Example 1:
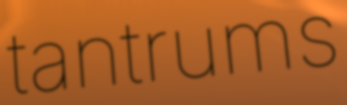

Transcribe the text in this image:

tantrums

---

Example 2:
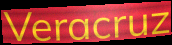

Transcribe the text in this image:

Veracruz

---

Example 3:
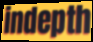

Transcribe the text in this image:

indepth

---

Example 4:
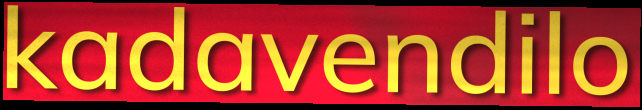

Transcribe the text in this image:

kadavendilo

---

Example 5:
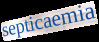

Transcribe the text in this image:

septicaemia